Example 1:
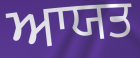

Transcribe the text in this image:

ਆਯਤ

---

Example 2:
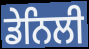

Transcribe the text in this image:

ਡੇਨਿਲੀ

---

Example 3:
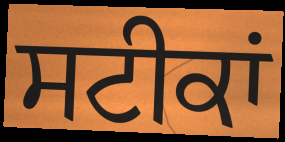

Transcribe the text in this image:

ਸਟੀਕਾਂ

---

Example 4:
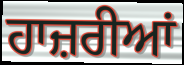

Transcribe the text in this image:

ਹਾਜ਼ਰੀਆਂ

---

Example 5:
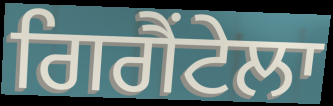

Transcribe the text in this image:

ਗਿਗੈਂਟੇਲਾ